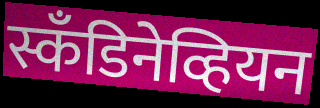
स्कँडिनेव्हियन